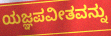
ಯಜ್ಞಪವೀತವನ್ನು